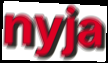
nyja